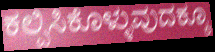
ಕಲ್ಪಿಸಿಕೊಳ್ಳುವುದಕ್ಕೂ